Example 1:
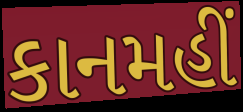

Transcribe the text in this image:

કાનમહીં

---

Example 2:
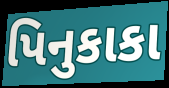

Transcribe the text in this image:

પિનુકાકા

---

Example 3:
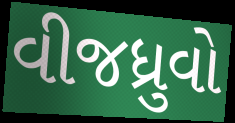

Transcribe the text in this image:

વીજધ્રુવો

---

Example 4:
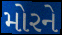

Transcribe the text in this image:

મોરને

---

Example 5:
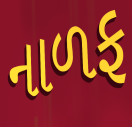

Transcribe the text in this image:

નાળફ